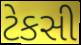
ટેકસી